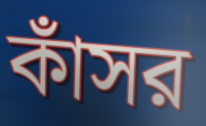
কাঁসর